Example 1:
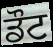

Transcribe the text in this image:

ਡੌਟ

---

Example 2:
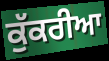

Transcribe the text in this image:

ਕੁੱਕਰੀਆ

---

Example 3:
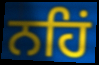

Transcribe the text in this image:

ਨਹਿਂ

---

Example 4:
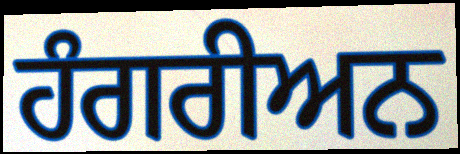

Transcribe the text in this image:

ਹੰਗਰੀਅਨ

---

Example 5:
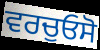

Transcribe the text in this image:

ਵਰਚੁਓਸੋ